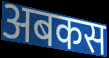
अबकस